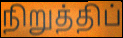
நிறுத்திப்